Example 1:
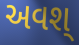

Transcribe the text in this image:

અવશ્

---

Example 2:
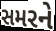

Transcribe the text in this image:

સમરને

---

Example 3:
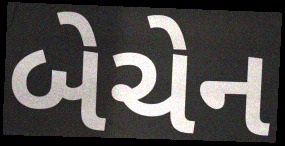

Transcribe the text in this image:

બેચેન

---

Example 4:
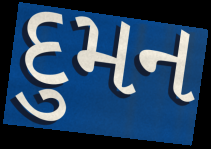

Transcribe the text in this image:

દુમન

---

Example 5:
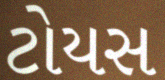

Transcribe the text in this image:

ટોયસ